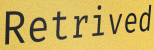
Retrived